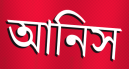
আনিস